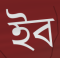
ইব